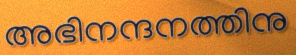
അഭിനന്ദനത്തിനു